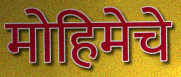
मोहिमेचे